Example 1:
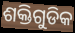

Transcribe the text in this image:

ଶକ୍ତିଗୁଡିକ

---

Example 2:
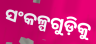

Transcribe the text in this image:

ସଂକଳ୍ପଗୁଡ଼ିକୁ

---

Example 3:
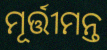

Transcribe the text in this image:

ମୂର୍ତ୍ତୀମନ୍ତ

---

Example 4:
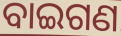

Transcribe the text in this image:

ବାଇଗଣ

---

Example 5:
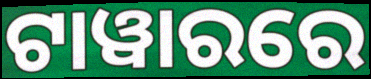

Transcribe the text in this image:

ଟାୱାରରେ